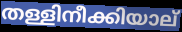
തള്ളിനീക്കിയാല്